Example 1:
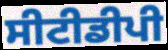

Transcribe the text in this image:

ਸੀਟੀਡੀਪੀ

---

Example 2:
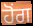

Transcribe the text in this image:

ਹੋੰਗ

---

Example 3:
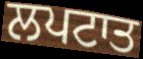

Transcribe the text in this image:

ਲਪਟਾਤ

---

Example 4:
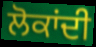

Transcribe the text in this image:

ਲੋਕਾਂਦੀ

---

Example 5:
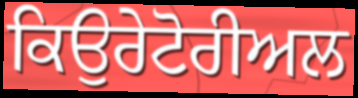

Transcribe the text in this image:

ਕਿਉਰੇਟੋਰੀਅਲ